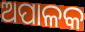
ଅପାଳକ